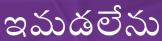
ఇమడలేను